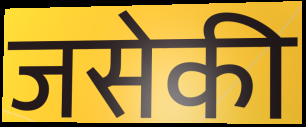
जसेकी